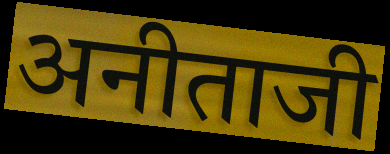
अनीताजी